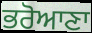
ਭਰੋਆਣਾ